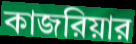
কাজরিয়ার